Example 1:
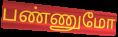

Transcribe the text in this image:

பண்ணுமோ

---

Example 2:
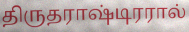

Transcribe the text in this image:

திருதராஷ்டிரரால்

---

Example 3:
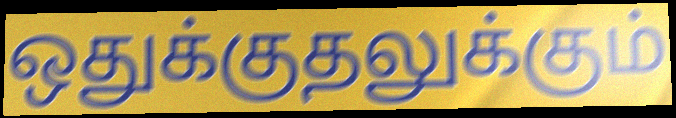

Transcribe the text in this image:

ஒதுக்குதலுக்கும்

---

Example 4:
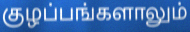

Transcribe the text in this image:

குழப்பங்களாலும்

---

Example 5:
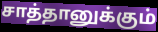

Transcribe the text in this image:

சாத்தானுக்கும்